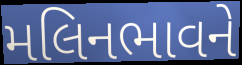
મલિનભાવને